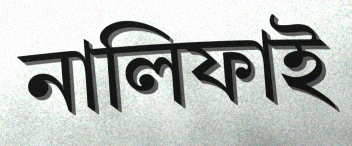
নালিফাই